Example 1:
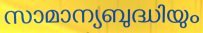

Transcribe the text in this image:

സാമാന്യബുദ്ധിയും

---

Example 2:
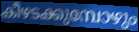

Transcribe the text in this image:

കീഴടക്കുമ്പോഴും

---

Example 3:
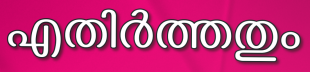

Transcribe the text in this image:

എതിർത്തതും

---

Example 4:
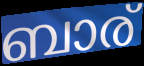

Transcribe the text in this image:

ബാര്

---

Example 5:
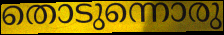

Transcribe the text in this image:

തൊടുന്നൊരു